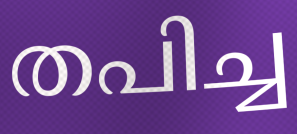
തപിച്ച